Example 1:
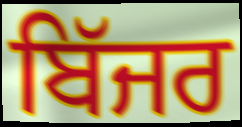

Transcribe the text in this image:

ਬਿੱਜਰ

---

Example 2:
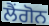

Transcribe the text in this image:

ਲੈਂਗੋਨ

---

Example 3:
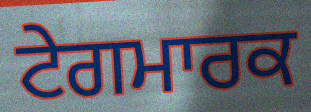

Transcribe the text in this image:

ਟੇਗਮਾਰਕ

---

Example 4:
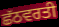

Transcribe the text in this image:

ਛੱਠਵਰਤੀ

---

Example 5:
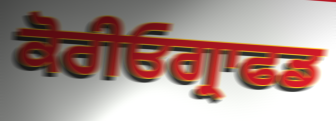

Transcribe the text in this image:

ਕੋਰੀਓਗ੍ਰਾਫਡ